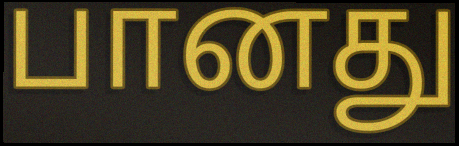
பானது